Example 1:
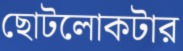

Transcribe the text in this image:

ছোটলোকটার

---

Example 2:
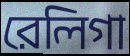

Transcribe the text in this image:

রেলিগা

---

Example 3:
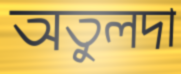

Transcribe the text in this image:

অতুলদা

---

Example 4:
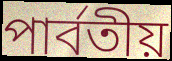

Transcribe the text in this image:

পার্বতীয়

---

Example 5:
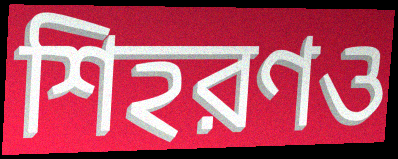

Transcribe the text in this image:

শিহরণও